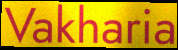
Vakharia